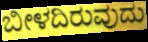
ಬೀಳದಿರುವುದು